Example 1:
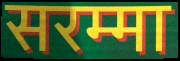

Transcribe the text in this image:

सरम्मा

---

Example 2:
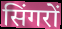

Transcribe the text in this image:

सिंगरों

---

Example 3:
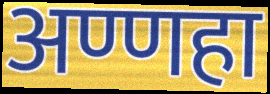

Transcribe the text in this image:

अण्णहा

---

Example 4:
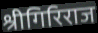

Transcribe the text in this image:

श्रीगिरिराज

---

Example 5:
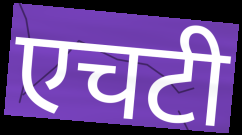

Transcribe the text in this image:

एचटी